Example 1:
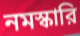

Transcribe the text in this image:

নমস্কারি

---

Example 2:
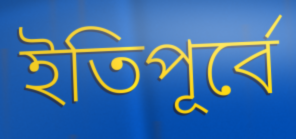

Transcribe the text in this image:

ইতিপূর্বে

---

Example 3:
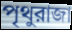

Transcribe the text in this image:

পৃথুরাজা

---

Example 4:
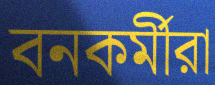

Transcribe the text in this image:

বনকর্মীরা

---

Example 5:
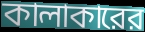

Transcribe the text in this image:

কালাকারের